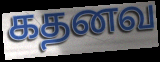
கதனவ